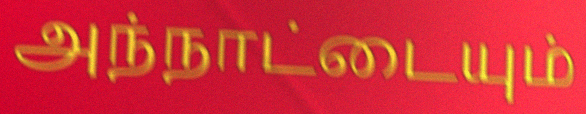
அந்நாட்டையும்